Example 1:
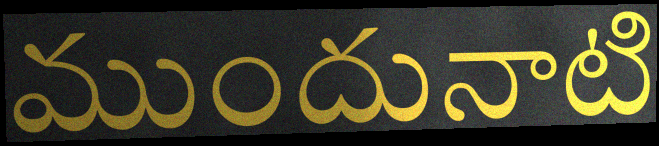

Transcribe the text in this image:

ముందునాటి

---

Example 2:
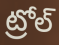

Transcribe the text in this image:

ట్రోల్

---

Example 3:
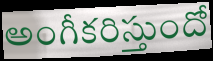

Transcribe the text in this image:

అంగీకరిస్తుందో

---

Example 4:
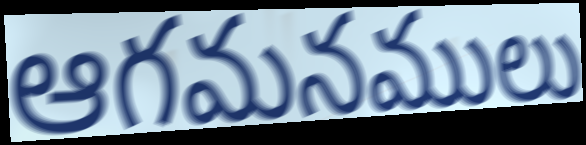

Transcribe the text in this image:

ఆగమనములు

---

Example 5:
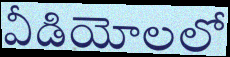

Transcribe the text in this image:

వీడియోలలో